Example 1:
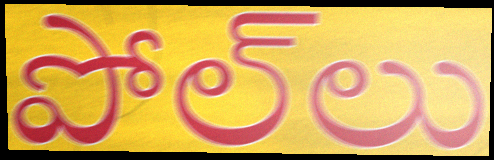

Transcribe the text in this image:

పోల్‌లు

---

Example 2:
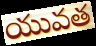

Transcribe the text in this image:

యువత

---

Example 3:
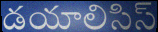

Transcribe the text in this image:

డయాలిసిస్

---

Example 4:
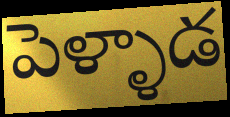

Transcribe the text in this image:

పెళ్ళాడ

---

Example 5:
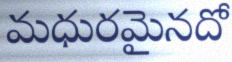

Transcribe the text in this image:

మధురమైనదో